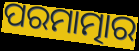
ପରମାତ୍ମାର